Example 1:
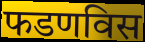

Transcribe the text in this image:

फडणविस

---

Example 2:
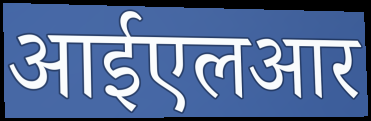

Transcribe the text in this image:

आईएलआर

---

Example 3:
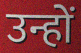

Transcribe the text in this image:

उन्हों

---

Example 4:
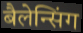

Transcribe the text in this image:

बैलेन्सिंग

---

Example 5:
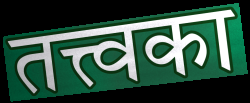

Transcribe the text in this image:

तत्त्वका